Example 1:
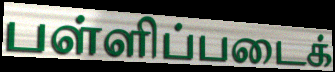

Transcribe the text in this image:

பள்ளிப்படைக்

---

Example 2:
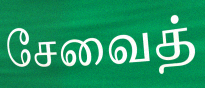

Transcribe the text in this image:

சேவைத்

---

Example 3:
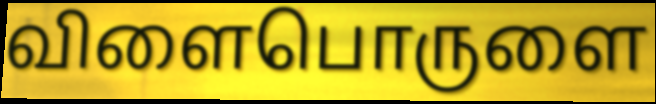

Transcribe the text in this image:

விளைபொருளை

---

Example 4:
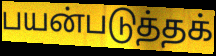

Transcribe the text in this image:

பயன்படுத்தக்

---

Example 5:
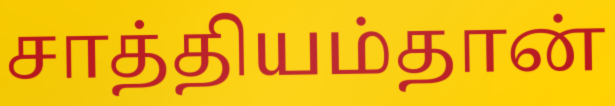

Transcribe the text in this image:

சாத்தியம்தான்